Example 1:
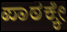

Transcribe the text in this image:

ಪಾಠಕ್ಕೇ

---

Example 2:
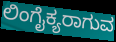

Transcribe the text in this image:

ಲಿಂಗೈಕ್ಯರಾಗುವ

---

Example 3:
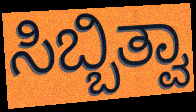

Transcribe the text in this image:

ಸಿಬ್ಬಿತ್ವಾ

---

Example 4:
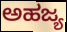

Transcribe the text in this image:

ಅಹಜ್ಯ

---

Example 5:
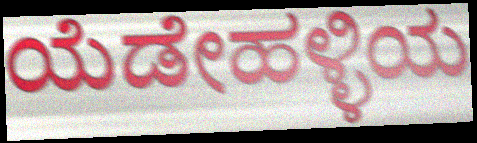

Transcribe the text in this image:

ಯೆಡೇಹಳ್ಳಿಯ